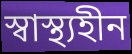
স্বাস্থ্যহীন